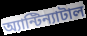
অ্যান্টিন্যাটাল